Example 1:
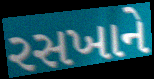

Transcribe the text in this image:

રસખાને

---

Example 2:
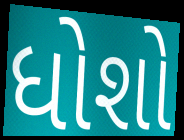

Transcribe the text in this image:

ધોશો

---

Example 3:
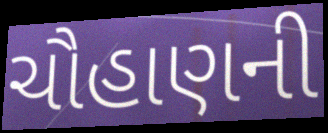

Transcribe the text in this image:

ચૌહાણની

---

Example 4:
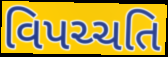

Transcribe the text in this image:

વિપચ્ચતિ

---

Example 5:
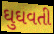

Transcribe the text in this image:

ઘુઘવતી